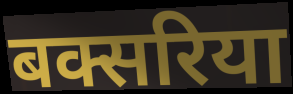
बक्सरिया